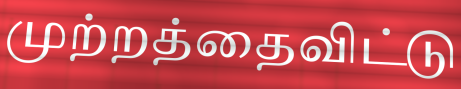
முற்றத்தைவிட்டு